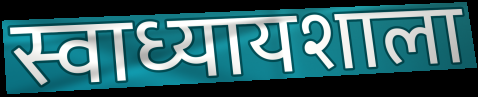
स्वाध्यायशाला